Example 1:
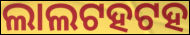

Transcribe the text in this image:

ଲାଲଟହଟହ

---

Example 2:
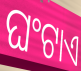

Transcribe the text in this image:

ଘଂଟାଏ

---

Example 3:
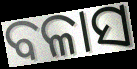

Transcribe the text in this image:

ବଳାସ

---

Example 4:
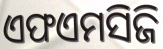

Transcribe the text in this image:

ଏଫଏମସିଜି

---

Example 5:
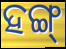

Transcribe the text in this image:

ହଙ୍ଗ୍